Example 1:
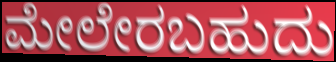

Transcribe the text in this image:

ಮೇಲೇರಬಹುದು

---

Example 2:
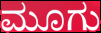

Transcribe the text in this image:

ಮೂಗು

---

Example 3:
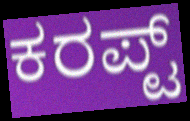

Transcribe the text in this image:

ಕರಪ್ಟ್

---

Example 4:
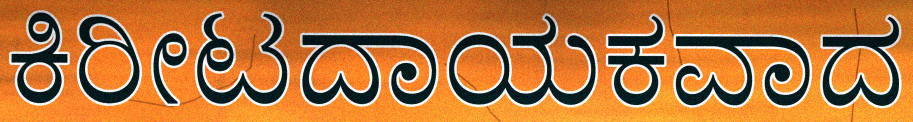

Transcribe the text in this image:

ಕಿರೀಟದಾಯಕವಾದ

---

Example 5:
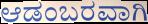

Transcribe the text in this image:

ಆಡಂಬರವಾಗಿ